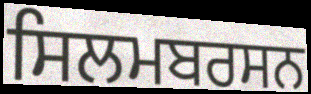
ਸਿਲਮਬਰਸਨ